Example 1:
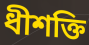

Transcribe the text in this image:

ধীশক্তি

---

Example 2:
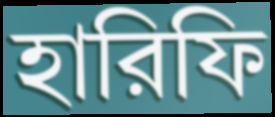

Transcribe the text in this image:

হারিফি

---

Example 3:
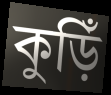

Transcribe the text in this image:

কুড়িঁ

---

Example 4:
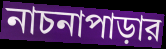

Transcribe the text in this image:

নাচনাপাড়ার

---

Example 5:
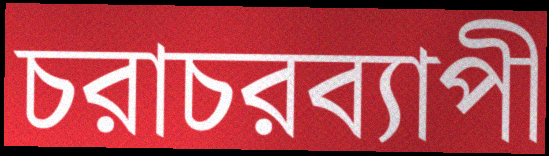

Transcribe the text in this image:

চরাচরব্যাপী